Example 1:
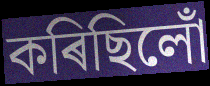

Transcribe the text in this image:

কৰিছিলোঁ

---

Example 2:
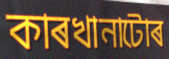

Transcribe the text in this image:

কাৰখানাটোৰ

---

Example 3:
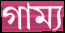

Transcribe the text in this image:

গাম্য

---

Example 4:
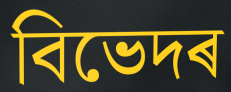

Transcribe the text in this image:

বিভেদৰ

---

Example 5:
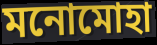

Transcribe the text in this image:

মনোমোহা